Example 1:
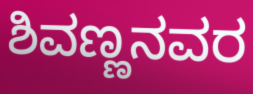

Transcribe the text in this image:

ಶಿವಣ್ಣನವರ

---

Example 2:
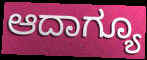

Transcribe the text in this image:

ಆದಾಗ್ಯೂ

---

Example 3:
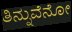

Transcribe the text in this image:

ತಿನ್ನುವೆನೋ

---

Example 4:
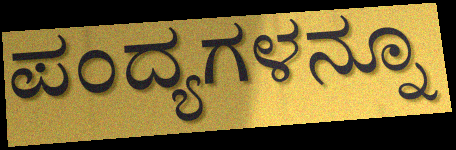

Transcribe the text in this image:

ಪಂದ್ಯಗಳನ್ನೂ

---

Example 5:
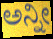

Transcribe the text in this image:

ಅನ್ನೀ